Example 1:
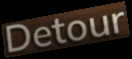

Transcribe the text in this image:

Detour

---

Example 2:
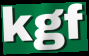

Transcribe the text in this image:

kgf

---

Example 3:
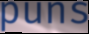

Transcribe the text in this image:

puns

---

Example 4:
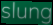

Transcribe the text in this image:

slung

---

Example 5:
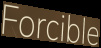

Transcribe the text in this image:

Forcible